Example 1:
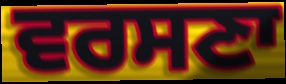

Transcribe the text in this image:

ਵਰਸਣਾ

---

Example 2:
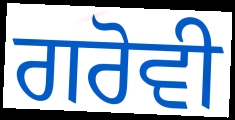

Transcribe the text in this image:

ਗਰੋਵੀ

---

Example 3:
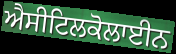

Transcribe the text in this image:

ਐਸੀਟਿਲਕੋਲਾਈਨ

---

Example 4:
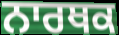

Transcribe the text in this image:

ਨਾਰਥਕ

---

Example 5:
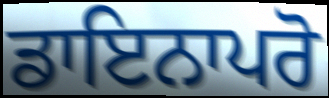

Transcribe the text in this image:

ਡਾਇਨਾਪਰੋ